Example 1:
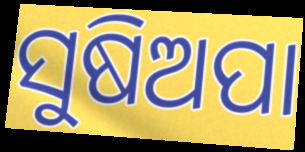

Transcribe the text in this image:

ସୁଷିଅପା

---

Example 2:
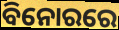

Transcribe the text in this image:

ବିନୋରରେ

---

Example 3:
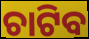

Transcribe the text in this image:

ଚାଟିବ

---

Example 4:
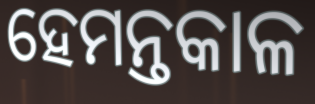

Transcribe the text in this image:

ହେମନ୍ତକାଳ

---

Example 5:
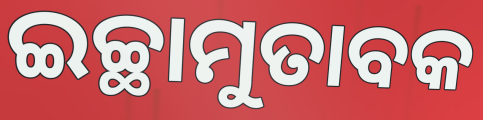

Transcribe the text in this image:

ଇଚ୍ଛାମୁତାବକ